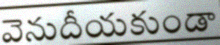
వెనుదీయకుండా